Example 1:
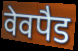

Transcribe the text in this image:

वेवपैड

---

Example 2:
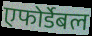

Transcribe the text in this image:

एफोर्डेबल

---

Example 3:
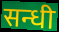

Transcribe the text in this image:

सन्धी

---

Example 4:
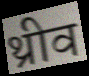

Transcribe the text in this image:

थ्रीव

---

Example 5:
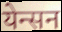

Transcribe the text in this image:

येन्सन